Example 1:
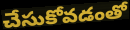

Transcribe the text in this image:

చేసుకోవడంతో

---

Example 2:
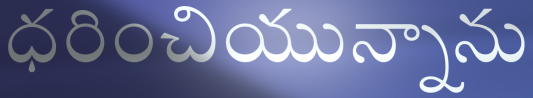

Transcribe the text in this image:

ధరించియున్నాను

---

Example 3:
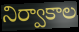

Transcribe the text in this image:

నిర్వాకాల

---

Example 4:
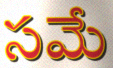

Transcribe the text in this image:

సమే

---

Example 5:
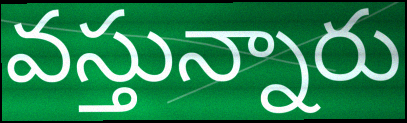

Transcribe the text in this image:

వస్తున్నారు